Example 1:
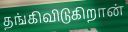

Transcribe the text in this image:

தங்கிவிடுகிறான்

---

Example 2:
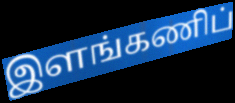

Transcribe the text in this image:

இளங்கணிப்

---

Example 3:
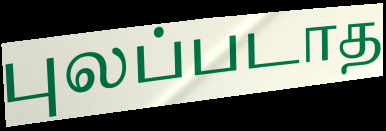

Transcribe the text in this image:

புலப்படாத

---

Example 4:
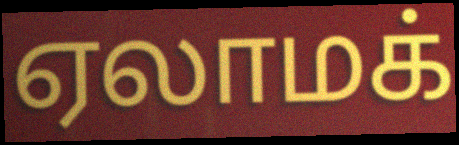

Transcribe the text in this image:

ஏலாமக்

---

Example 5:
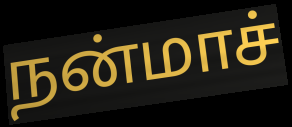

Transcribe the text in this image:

நன்மாச்